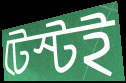
টেস্টই